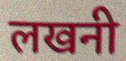
लखनी